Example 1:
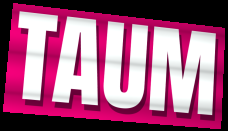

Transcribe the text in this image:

TAUM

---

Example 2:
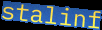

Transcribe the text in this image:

stalinf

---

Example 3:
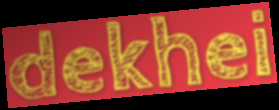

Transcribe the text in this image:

dekhei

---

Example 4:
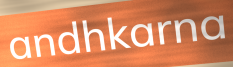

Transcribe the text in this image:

andhkarna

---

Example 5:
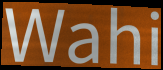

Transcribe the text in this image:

Wahi